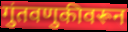
गुंतवणुकीवरून